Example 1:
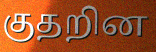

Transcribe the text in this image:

குதறின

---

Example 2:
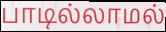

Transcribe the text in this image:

பாடில்லாமல்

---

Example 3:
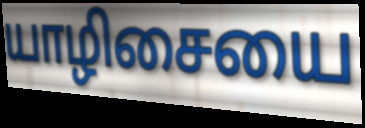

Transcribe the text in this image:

யாழிசையை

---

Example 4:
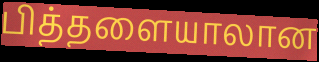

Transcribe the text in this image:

பித்தளையாலான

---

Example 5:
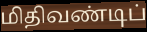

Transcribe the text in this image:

மிதிவண்டிப்